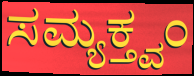
ಸಮ್ಯಕ್ತ್ವಂ